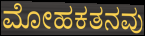
ಮೋಹಕತನವು